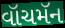
વૉચમૅન